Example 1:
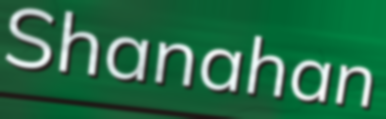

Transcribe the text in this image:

Shanahan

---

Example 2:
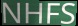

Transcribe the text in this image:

NHFS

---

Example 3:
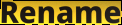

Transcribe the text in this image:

Rename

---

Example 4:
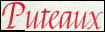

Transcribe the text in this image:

Puteaux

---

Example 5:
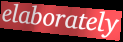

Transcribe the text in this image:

elaborately